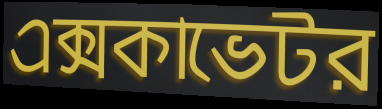
এক্সকাভেটর